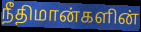
நீதிமான்களின்